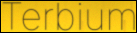
Terbium